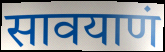
सावयाणं